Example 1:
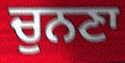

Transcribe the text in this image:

ਚੁਨਣਾ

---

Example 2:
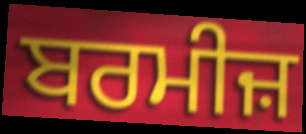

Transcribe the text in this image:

ਬਰਮੀਜ਼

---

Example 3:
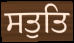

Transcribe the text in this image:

ਸਤੁਤਿ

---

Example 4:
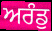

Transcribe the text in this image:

ਅਰੰਡੁ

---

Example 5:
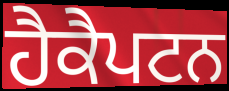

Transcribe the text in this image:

ਹੈਕੈਪਟਨ